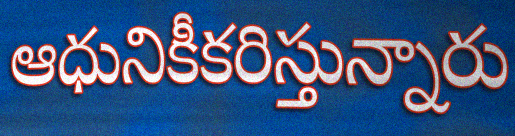
ఆధునికీకరిస్తున్నారు